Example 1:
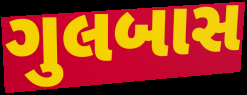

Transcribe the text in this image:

ગુલબાસ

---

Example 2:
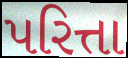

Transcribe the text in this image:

પરિત્તા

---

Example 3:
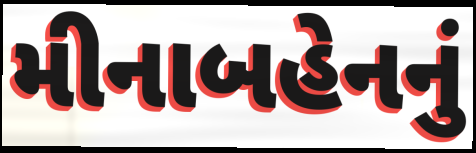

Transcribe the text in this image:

મીનાબહેનનું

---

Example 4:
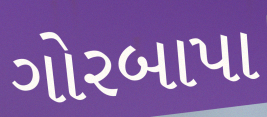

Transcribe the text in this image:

ગોરબાપા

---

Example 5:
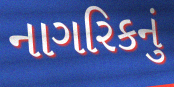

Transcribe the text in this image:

નાગરિકનું